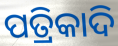
ପତ୍ରିକାଦି